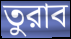
তুরাব